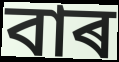
বাৰ